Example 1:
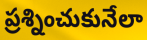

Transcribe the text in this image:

ప్రశ్నించుకునేలా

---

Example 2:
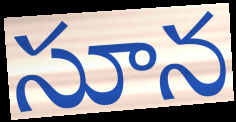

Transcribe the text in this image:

సూన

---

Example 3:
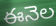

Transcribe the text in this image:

ఈనెల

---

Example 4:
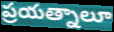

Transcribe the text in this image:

ప్రయత్నాలూ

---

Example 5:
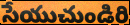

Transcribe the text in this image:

సేయుచుండిరి